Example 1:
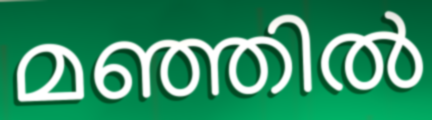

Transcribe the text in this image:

മഞ്ഞിൽ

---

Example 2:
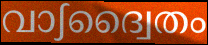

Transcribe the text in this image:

വാഽദ്വൈതം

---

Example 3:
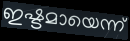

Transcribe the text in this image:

ഇഷ്ടമായെന്ന്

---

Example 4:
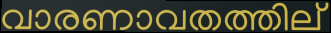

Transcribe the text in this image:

വാരണാവതത്തില്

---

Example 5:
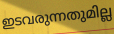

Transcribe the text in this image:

ഇടവരുന്നതുമില്ല